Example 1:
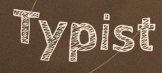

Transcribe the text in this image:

Typist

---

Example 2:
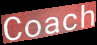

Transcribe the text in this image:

Coach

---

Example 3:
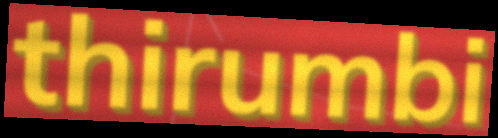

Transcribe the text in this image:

thirumbi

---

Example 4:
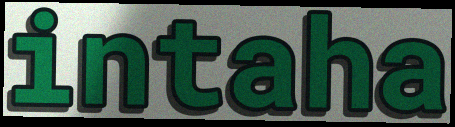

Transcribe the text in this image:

intaha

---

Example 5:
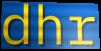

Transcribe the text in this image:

dhr